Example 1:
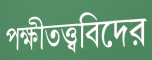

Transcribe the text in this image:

পক্ষীতত্ত্ববিদের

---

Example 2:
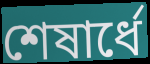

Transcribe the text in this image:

শেষার্ধে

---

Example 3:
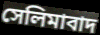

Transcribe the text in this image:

সেলিমাবাদ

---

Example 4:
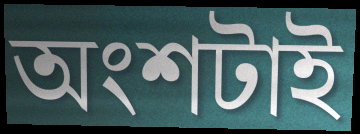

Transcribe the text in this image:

অংশটাই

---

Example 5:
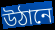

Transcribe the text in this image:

উঠানে